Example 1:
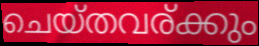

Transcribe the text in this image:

ചെയ്തവര്ക്കും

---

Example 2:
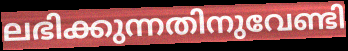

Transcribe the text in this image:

ലഭിക്കുന്നതിനുവേണ്ടി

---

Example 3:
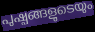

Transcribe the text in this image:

പുഷ്പങ്ങളുടെയും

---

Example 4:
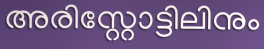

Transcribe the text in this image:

അരിസ്റ്റോട്ടിലിനും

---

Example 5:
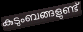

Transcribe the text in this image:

കുടുംബങ്ങളുണ്ട്